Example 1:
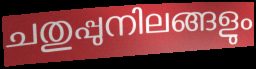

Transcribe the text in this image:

ചതുപ്പുനിലങ്ങളും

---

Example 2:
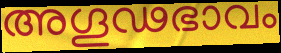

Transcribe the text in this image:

അഗൂഢഭാവം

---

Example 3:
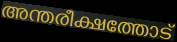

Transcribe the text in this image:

അന്തരീക്ഷത്തോട്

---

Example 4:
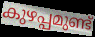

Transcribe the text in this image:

കുഴപ്പമുണ്ട്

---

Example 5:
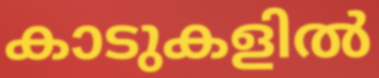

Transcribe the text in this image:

കാടുകളിൽ